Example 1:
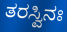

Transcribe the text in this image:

ತರಸ್ವಿನಃ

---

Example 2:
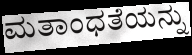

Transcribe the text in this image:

ಮತಾಂಧತೆಯನ್ನು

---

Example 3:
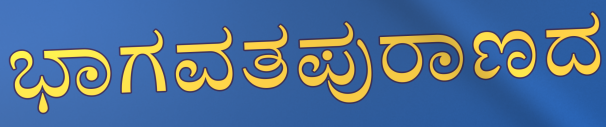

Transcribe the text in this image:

ಭಾಗವತಪುರಾಣದ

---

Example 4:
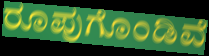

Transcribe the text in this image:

ರೂಪುಗೊಂಡಿವೆ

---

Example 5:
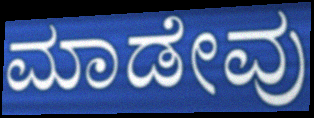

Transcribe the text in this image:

ಮಾಡೇವು